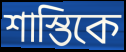
শাস্তিকে